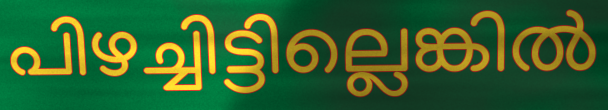
പിഴച്ചിട്ടില്ലെങ്കിൽ